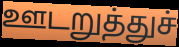
ஊடறுத்துச்